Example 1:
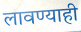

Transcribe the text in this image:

लावण्याही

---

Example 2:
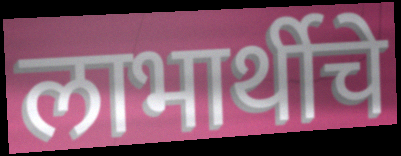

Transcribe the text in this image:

लाभार्थीचे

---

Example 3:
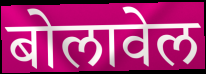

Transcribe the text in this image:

बोलावेल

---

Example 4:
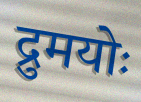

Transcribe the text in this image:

द्रुमयोः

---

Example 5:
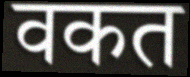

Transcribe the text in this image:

वकत